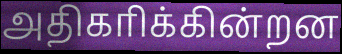
அதிகரிக்கின்றன